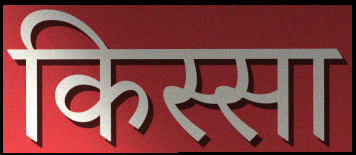
किस्सा